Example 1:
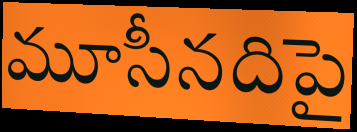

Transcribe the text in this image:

మూసీనదిపై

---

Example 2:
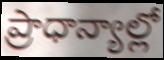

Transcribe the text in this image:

ప్రాధాన్యాల్లో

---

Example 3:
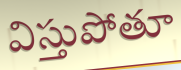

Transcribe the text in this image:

విస్తుపోతూ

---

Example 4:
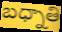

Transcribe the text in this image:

బధ్నాతి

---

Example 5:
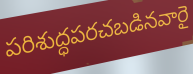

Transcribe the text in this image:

పరిశుద్ధపరచబడినవారై